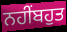
ਨਹੀਂਬਹੁਤ